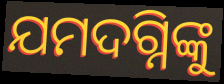
ଯମଦଗ୍ନିଙ୍କୁ